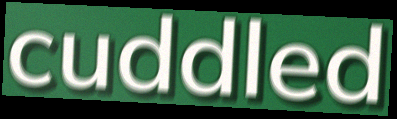
cuddled